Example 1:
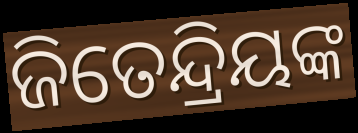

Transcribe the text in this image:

ଜିତେନ୍ଦ୍ରିୟଙ୍କ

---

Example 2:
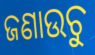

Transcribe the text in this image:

ଜଣାଉଚୁ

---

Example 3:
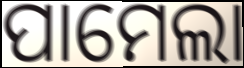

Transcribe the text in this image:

ପାମେଲା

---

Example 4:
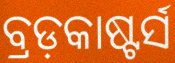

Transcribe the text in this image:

ବ୍ରଡ଼କାଷ୍ଟର୍ସ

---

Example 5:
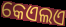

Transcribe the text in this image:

କେଏଲଏ